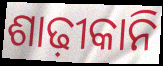
ଶାଢ଼ୀକାନି